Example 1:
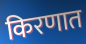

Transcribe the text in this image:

किरणात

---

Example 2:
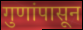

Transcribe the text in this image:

गुणांपासून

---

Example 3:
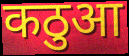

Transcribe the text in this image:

कठुआ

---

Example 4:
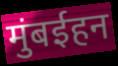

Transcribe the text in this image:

मुंबईहन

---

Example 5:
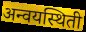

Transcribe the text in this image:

अन्वयस्थिती